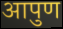
आपुण